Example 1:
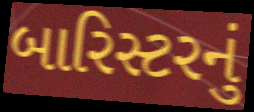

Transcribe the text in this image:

બારિસ્ટરનું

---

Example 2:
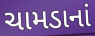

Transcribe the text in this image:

ચામડાનાં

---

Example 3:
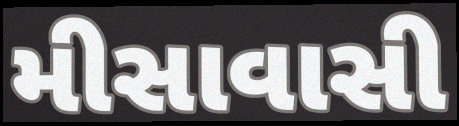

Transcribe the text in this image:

મીસાવાસી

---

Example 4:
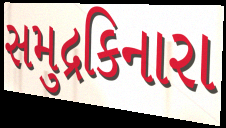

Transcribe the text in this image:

સમુદ્રકિનારા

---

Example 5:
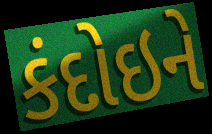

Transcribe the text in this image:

કંદોઇને